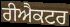
ਰੀਐਕਟਰ